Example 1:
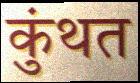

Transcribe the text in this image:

कुंथत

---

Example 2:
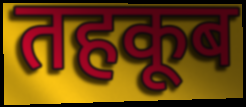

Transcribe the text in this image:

तहकूब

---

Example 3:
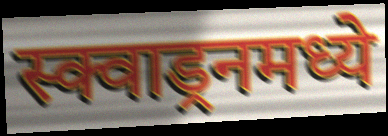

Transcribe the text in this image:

स्क्वाड्रनमध्ये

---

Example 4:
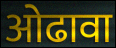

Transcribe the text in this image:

ओढावा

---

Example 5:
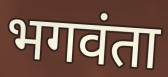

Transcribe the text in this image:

भगवंता